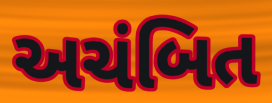
અચંબિત